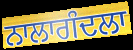
ਨਾਲਾਗੰਦਲਾ